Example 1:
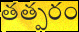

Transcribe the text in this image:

తత్పరం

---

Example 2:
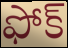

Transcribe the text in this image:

ఫోక్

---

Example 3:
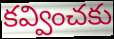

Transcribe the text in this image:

కవ్వించకు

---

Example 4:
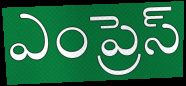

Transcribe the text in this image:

ఎంప్రెస్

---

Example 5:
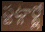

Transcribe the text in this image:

స్టట్గార్ట్లో